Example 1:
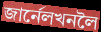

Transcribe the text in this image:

জাৰ্নেলখনলৈ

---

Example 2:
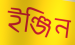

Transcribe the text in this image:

ইঞ্জিন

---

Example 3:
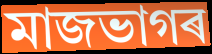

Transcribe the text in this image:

মাজভাগৰ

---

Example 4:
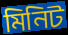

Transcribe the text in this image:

মিনিট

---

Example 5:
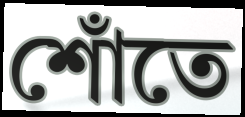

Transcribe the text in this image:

শোঁতে